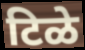
टिळे